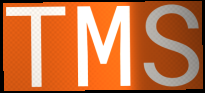
TMS